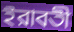
ইরাবতী